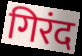
गिरंद